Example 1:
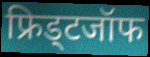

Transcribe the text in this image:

फ्रिड्टजॉफ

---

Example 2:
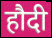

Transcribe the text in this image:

हौदी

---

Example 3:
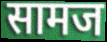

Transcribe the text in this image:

सामज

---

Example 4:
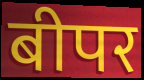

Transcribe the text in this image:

बीपर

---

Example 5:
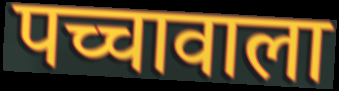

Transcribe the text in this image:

पच्चावाला